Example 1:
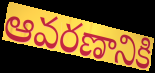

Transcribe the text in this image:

ఆవరణానికి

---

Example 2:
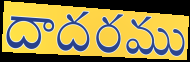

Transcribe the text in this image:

దాదరము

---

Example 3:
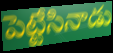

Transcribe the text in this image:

పెట్టేసినాడు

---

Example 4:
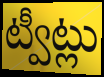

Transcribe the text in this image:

ట్వీట్లు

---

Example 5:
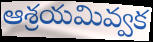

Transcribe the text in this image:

ఆశ్రయమివ్వక